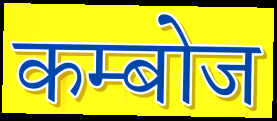
कम्बोज